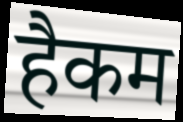
हैकम